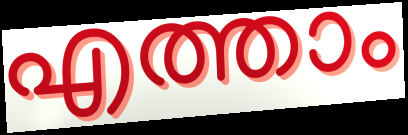
എത്താം